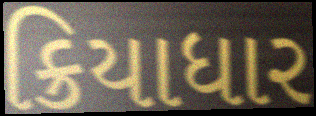
ક્રિયાધાર